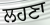
ਲਹਣਾ